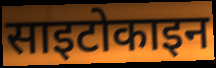
साइटोकाइन